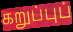
கறுப்புப்